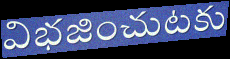
విభజించుటకు